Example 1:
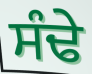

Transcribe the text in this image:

ਸੰਢੇ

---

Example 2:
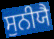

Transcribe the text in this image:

ਸੁਨੀਯੈ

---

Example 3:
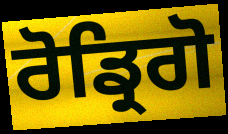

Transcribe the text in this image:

ਰੋਡ੍ਰਿਗੋ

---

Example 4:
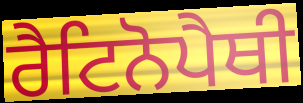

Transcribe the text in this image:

ਰੈਟਿਨੋਪੈਥੀ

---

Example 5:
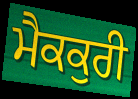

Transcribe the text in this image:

ਮੈਕਕੁਰੀ